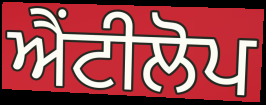
ਐਂਟੀਲੋਪ